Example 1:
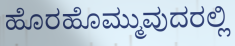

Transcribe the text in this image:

ಹೊರಹೊಮ್ಮುವುದರಲ್ಲಿ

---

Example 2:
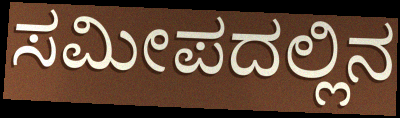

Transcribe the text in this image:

ಸಮೀಪದಲ್ಲಿನ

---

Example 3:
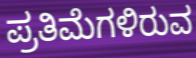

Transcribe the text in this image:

ಪ್ರತಿಮೆಗಳಿರುವ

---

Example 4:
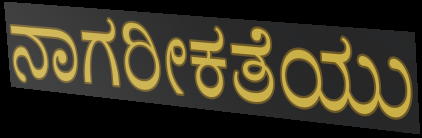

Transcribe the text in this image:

ನಾಗರೀಕತೆಯು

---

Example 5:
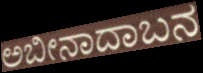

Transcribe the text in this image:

ಅಬೀನಾದಾಬನ